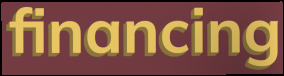
financing